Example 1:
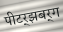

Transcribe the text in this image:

पीटर्झबर्ग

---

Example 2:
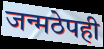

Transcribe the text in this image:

जन्मठेपही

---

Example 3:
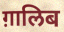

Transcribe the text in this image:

ग़ालिब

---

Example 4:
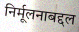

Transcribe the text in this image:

निर्मूलनाबद्दल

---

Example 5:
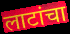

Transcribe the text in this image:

लाटांचा